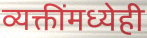
व्यक्तींमध्येही